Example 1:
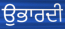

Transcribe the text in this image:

ਉਭਾਰਦੀ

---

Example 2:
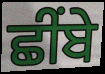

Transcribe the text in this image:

ਛੀਂਬੇ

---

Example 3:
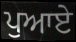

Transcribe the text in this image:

ਪੁਆਏ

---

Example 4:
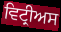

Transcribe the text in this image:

ਵਿਟ੍ਰੀਅਸ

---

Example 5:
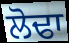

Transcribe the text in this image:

ਲੋਢਾ